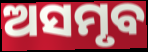
ଅସମୃବ